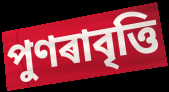
পুণৰাবৃত্তি